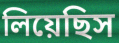
লিয়েছিস